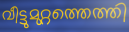
വീട്ടുമുറ്റത്തെത്തി